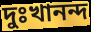
দুঃখানন্দ